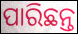
ପାରିଛନ୍ତ